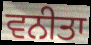
ਵਨੀਤਾ